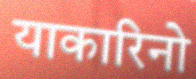
याकारिनो